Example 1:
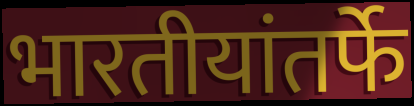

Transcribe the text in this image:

भारतीयांतर्फे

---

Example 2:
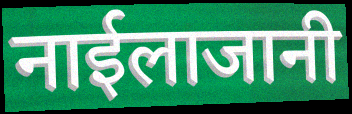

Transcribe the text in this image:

नाईलाजानी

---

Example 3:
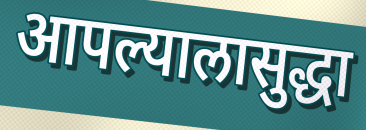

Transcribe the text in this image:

आपल्यालासुद्धा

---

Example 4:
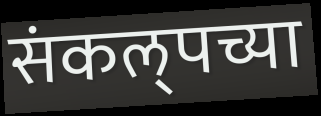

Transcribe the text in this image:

संकल्पच्या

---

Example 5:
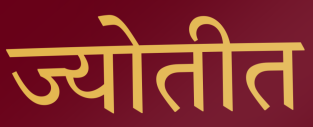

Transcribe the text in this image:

ज्योतीत